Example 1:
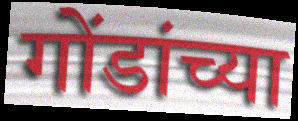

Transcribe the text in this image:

गोंडांच्या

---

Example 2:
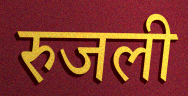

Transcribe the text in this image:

रुजली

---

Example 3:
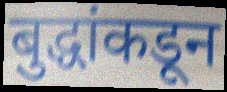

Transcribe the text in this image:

बुद्धांकडून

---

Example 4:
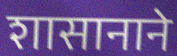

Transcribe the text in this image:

शासानाने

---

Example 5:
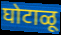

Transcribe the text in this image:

घोटाळू